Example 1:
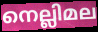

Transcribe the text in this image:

നെല്ലിമല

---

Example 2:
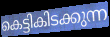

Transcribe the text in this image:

കെട്ടികിടക്കുന്ന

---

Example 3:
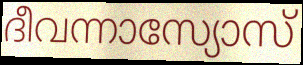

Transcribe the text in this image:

ദീവന്നാസ്യോസ്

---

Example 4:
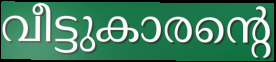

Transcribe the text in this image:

വീട്ടുകാരന്റെ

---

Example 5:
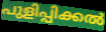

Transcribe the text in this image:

പുളിപ്പിക്കൽ